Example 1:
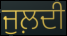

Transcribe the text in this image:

ਜੁਲ਼ਦੀ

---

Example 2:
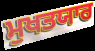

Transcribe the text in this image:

ਮੁਖਤਯਾਰ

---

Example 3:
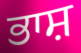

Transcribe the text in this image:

ਭਾਸ਼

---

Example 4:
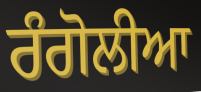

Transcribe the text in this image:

ਰੰਗੋਲੀਆ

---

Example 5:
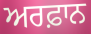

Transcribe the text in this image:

ਅਰਫ਼ਾਨ